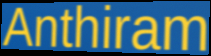
Anthiram